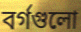
বর্গগুলো